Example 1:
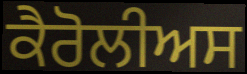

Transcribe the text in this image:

ਕੈਰੋਲੀਅਸ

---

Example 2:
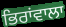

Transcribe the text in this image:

ਭਿਰਾਂਵਾਲਾ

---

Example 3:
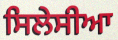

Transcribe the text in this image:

ਸਿਲੇਸੀਆ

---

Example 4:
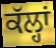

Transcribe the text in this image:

ਕੱਲ੍ਹਾਂ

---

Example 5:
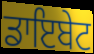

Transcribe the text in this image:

ਡਾਇਬੇਟ